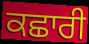
ਕਛਾਰੀ